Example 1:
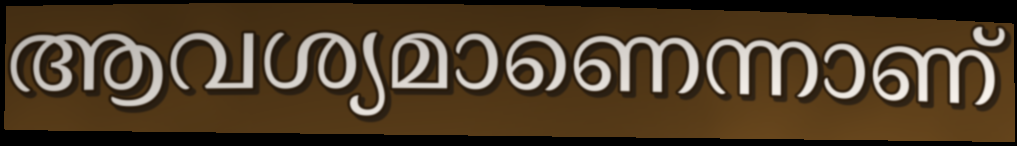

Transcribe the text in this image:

ആവശ്യമാണെന്നാണ്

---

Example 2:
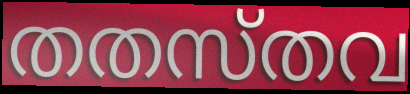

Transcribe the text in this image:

തതസ്തവ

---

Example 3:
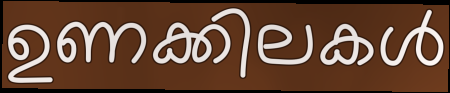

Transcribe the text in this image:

ഉണക്കിലകൾ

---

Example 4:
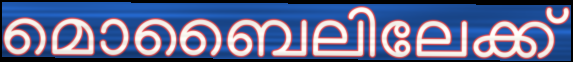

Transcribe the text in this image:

മൊബൈലിലേക്ക്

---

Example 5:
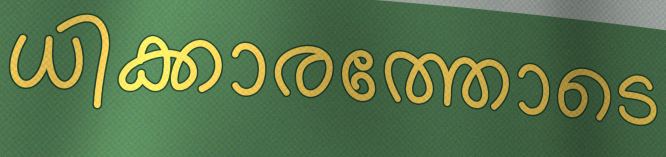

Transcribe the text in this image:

ധിക്കാരത്തോടെ